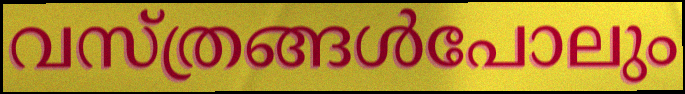
വസ്ത്രങ്ങൾപോലും